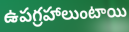
ఉపగ్రహాలుంటాయి